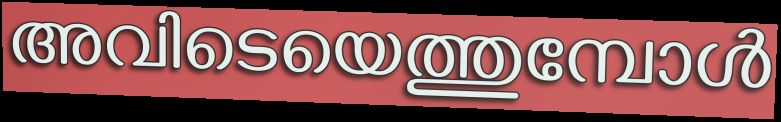
അവിടെയെത്തുമ്പോൾ